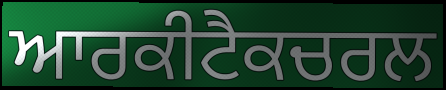
ਆਰਕੀਟੈਕਚਰਲ